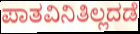
ಪಾತವಿನಿತಿಲ್ಲದಡೆ